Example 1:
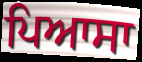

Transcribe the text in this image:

ਪਿਆਸਾ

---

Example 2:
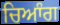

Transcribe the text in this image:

ਚਿਆੰਗ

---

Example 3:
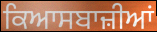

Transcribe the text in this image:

ਕਿਆਸਬਾਜ਼ੀਆਂ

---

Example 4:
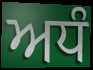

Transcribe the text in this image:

ਅਧੰ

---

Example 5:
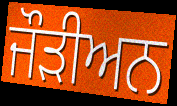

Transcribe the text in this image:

ਜੌੜੀਅਨ